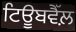
ਟਿਊਬਵੈੱਲ਼